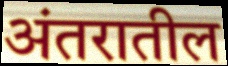
अंतरातील